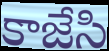
కాజేసి